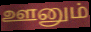
ஊனும்